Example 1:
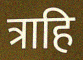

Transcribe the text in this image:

त्राहि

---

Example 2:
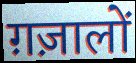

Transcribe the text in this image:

ग़ज़ालों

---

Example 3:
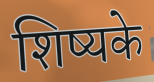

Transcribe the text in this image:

शिष्यके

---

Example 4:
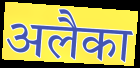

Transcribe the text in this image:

अलैका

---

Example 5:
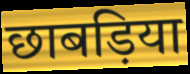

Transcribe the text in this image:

छाबड़िया